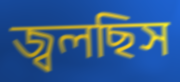
জ্বলছিস